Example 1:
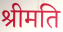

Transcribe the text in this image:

श्रीमति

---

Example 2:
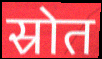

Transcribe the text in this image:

स्रोत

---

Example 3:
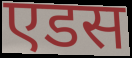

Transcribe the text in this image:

एडस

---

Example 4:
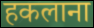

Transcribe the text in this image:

हकलाना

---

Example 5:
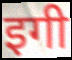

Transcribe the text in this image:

इगी